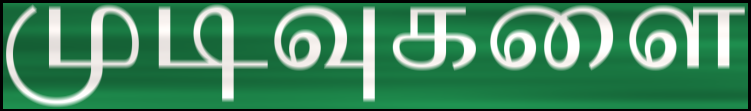
முடிவுகளை